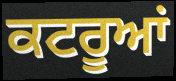
ਕਟਰੂਆਂ